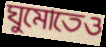
ঘুমোতেও